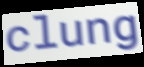
clung